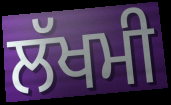
ਲੱਖਮੀ